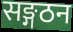
सङ्गठन